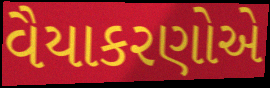
વૈયાકરણોએ